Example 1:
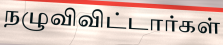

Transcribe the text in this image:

நழுவிவிட்டார்கள்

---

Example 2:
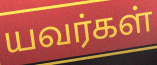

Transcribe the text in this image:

யவர்கள்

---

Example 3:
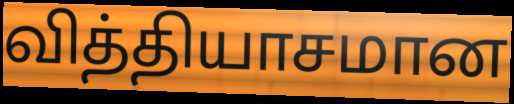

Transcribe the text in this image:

வித்தியாசமான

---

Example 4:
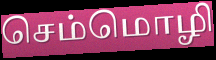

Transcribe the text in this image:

செம்மொழி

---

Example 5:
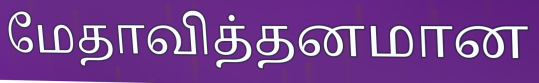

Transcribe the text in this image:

மேதாவித்தனமான